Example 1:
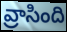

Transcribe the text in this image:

వ్రాసింది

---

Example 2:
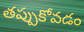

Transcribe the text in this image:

తప్పుకోవడం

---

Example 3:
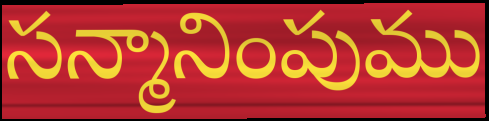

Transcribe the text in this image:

సన్మానింపుము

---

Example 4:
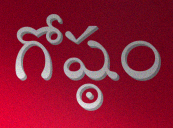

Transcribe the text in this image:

గోష్ఠం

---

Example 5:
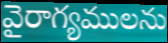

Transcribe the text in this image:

వైరాగ్యములను